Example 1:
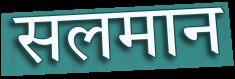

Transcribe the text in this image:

सलमान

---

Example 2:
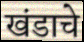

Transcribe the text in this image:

खंडाचे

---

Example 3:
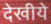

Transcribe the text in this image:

देखीये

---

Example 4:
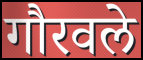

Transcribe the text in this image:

गौरवले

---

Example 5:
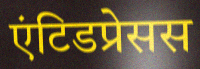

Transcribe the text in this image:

एंटिडप्रेसस